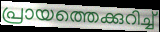
പ്രായത്തെക്കുറിച്ച്